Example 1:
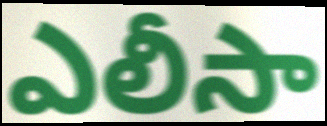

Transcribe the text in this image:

ఎలీసా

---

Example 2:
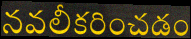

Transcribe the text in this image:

నవలీకరించడం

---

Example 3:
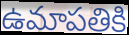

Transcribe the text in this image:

ఉమాపతికి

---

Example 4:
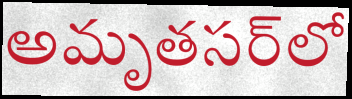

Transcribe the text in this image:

అమృతసర్‌లో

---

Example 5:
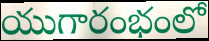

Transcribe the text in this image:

యుగారంభంలో